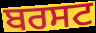
ਬਰਸਟ